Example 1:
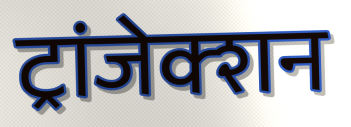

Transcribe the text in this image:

ट्रांजेक्शन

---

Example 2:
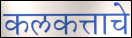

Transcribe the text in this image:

कलकत्ताचे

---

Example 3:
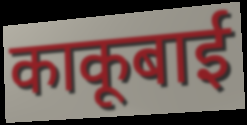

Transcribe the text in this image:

काकूबाई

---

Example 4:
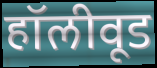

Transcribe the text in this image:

हॉलीवूड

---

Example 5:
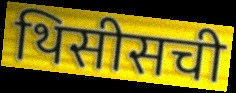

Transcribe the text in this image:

थिसीसची